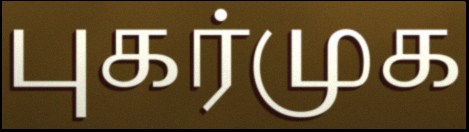
புகர்முக